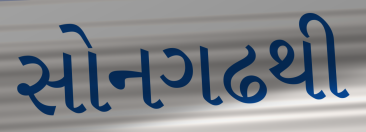
સોનગઢથી